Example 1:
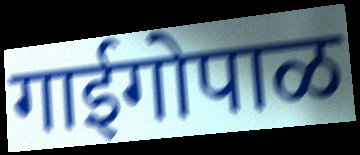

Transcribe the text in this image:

गाईगोपाळ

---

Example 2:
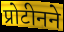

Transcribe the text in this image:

प्रोटीनने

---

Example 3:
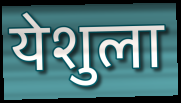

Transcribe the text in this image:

येशुला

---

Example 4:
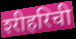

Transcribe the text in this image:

श्रीहरिची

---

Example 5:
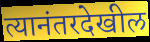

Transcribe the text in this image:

त्यानंतरदेखील